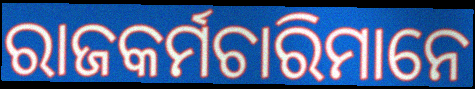
ରାଜକର୍ମଚାରିମାନେ